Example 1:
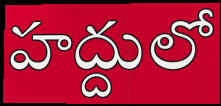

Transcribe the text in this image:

హద్దులో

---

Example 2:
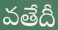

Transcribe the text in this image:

వతేదీ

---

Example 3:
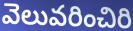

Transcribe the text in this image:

వెలువరించిరి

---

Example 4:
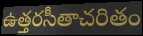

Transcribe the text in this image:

ఉత్తరసీతాచరితం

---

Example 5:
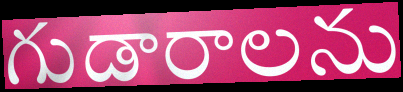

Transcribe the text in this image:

గుడారాలను